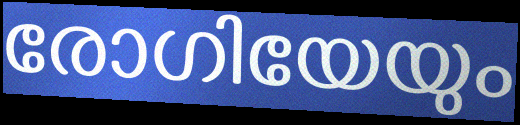
രോഗിയേയും